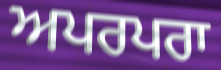
ਅਪਰਪਰਾ